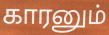
காரனும்